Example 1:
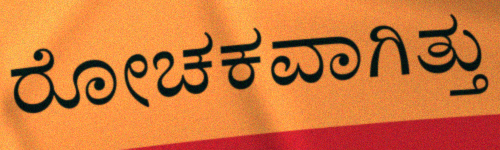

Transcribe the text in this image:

ರೋಚಕವಾಗಿತ್ತು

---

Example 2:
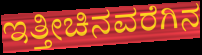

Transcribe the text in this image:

ಇತ್ತೀಚಿನವರೆಗಿನ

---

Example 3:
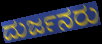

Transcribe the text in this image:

ದುರ್ಜನರು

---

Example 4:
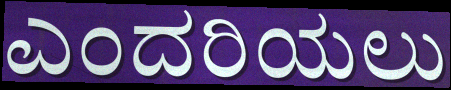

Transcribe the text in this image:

ಎಂದರಿಯಲು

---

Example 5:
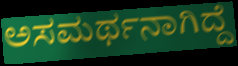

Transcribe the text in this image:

ಅಸಮರ್ಥನಾಗಿದ್ದೆ